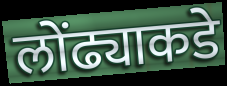
लोंढ्याकडे